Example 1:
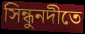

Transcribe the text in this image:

সিন্ধুনদীতে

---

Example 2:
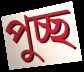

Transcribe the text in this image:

পুচ্ছ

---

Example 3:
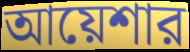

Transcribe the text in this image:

আয়েশার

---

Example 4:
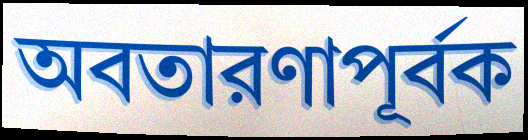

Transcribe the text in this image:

অবতারণাপূর্বক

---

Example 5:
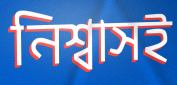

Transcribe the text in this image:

নিশ্বাসই